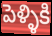
పెళ్ళికి